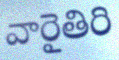
వారైతిరి